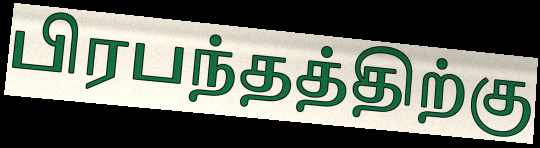
பிரபந்தத்திற்கு